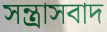
সন্ত্ৰাসবাদ